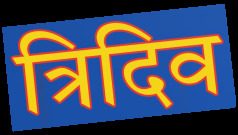
त्रिदिव